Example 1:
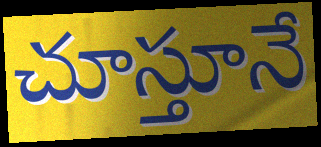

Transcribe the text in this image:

చూస్తూనే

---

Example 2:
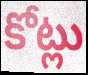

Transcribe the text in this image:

కోట్లు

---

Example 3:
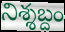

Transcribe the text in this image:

నిశ్శబ్దం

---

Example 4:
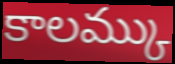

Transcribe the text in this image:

కాలమ్కు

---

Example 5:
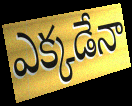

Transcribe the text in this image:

ఎక్కడేనా